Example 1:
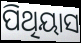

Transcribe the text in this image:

ପିଥିୟାସ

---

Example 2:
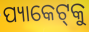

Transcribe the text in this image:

ପ୍ୟାକେଟ୍‌କୁ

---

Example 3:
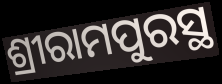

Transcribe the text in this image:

ଶ୍ରୀରାମପୁରସ୍ଥ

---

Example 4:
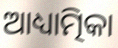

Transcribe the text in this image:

ଆଧ୍ୟାତ୍ମିକା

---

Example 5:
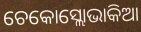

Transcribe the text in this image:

ଚେକୋସ୍ଲୋଭାକିଆ